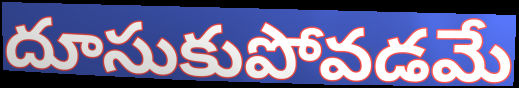
దూసుకుపోవడమే